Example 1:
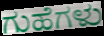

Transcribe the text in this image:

ಗುಹೆಗಳು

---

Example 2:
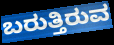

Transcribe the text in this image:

ಬರುತ್ತಿರುವ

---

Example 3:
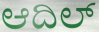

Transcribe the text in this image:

ಆದಿಲ್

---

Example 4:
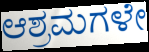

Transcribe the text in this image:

ಆಶ್ರಮಗಳೇ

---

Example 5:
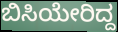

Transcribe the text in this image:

ಬಿಸಿಯೇರಿದ್ದ